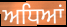
ਅਧਿਆਂ